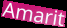
Amarit